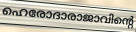
ഹെരോദാരാജാവിന്റെ